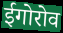
ईगोरोव